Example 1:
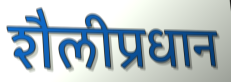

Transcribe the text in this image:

शैलीप्रधान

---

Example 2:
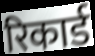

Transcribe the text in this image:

रिकार्ड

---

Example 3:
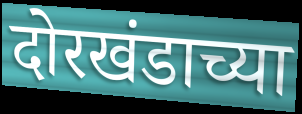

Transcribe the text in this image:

दोरखंडाच्या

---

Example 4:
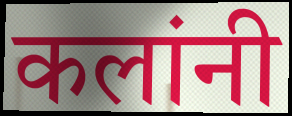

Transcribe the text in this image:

कलांनी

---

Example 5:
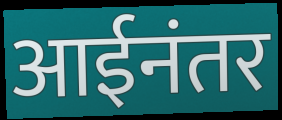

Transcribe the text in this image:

आईनंतर